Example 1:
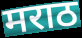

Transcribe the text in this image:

मराठ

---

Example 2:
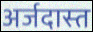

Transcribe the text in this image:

अर्जदास्त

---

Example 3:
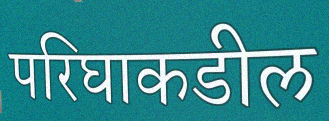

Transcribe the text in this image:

परिघाकडील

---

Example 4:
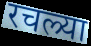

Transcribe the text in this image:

रचल्या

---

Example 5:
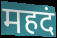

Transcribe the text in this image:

महदं